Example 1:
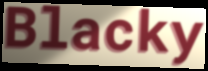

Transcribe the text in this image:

Blacky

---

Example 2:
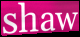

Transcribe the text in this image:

shaw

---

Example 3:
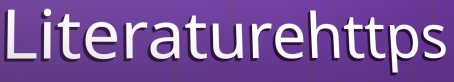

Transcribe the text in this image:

Literaturehttps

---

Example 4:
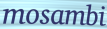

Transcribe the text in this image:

mosambi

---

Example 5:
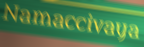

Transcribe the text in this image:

Namaccivaya